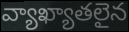
వ్యాఖ్యాతలైన